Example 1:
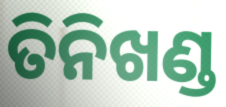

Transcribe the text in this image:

ତିନିଖଣ୍ଡ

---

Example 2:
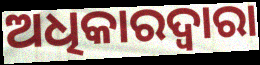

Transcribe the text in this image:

ଅଧିକାରଦ୍ୱାରା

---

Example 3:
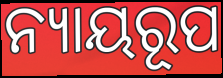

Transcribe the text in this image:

ନ୍ୟାୟରୂପ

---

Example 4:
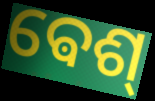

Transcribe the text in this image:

ଵେଶ୍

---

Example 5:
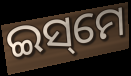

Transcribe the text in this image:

ଇସ୍‌ମେ